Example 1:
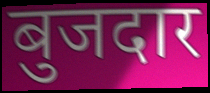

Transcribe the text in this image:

बुजदार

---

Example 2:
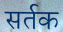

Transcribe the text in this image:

सर्तक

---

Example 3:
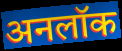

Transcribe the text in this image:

अनलॉक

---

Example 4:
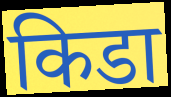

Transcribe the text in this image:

किडा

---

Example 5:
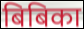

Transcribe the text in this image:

बिबिका